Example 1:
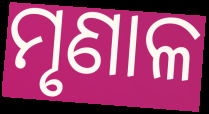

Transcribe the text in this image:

ମୃଣାଳ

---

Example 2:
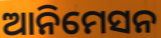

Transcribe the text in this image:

ଆନିମେସନ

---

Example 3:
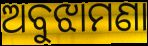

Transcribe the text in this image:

ଅବୁଝାମଣା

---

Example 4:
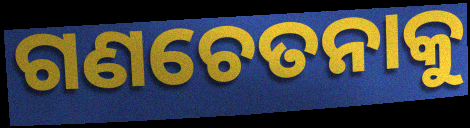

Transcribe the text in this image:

ଗଣଚେତନାକୁ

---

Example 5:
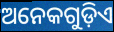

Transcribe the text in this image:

ଅନେକଗୁଡ଼ିଏ